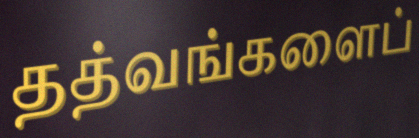
தத்வங்களைப்